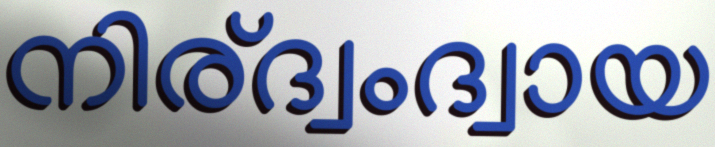
നിര്ദ്വംദ്വായ